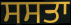
ਸਸਤਾ